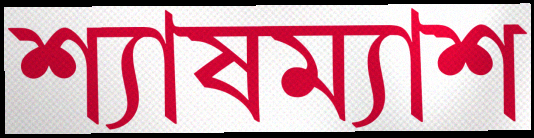
শ্যাষম্যাশ